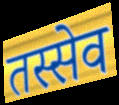
तस्सेव